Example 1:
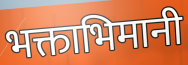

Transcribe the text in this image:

भक्ताभिमानी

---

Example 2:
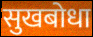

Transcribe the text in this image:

सुखबोधा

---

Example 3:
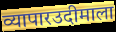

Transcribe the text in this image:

व्यापारउदीमाला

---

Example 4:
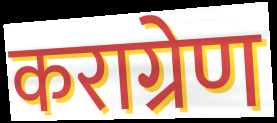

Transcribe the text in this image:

कराग्रेण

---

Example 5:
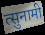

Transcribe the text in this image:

त्सुनामी